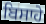
ਬਿਸਾਹੇ